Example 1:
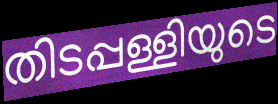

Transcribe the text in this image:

തിടപ്പള്ളിയുടെ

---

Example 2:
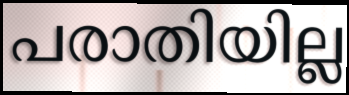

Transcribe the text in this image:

പരാതിയില്ല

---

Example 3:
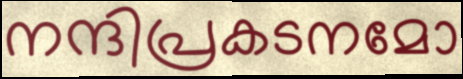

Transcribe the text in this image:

നന്ദിപ്രകടനമോ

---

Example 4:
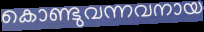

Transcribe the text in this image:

കൊണ്ടുവന്നവനായ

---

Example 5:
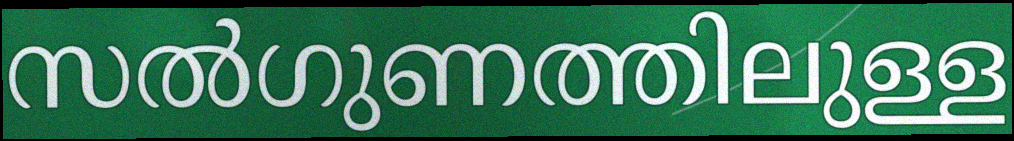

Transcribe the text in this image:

സൽഗുണത്തിലുള്ള